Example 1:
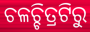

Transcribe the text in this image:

ଚଳଚ୍ଚିତ୍ରଟିରୁ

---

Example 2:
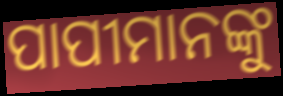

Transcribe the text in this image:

ପାପୀମାନଙ୍କୁ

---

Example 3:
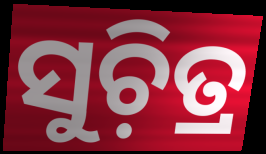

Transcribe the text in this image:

ସୁଚ଼ିତ୍ର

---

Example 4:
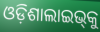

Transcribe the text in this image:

ଓଡ଼ିଶାଲାଇଭ୍‌କୁ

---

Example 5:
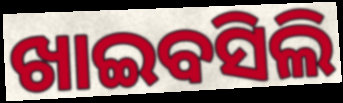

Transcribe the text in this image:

ଖାଇବସିଲି